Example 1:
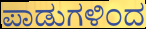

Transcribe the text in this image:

ಪಾಡುಗಳಿಂದ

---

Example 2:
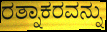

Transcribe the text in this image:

ರತ್ನಾಕರವನ್ನು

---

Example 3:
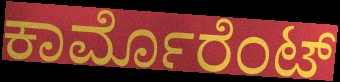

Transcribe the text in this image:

ಕಾರ್ಮೊರೆಂಟ್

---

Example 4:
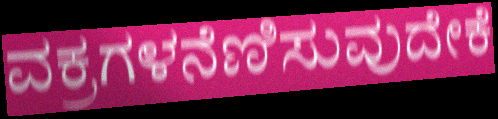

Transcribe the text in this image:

ವಕ್ರಗಳನೆಣಿಸುವುದೇಕೆ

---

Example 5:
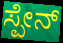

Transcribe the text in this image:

ಸ್ಪೇನ್